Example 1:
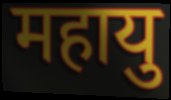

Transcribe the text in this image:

महायु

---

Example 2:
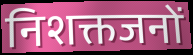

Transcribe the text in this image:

निशक्तजनों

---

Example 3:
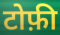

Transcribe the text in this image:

टोफ़ी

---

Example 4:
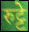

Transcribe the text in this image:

रुट्टे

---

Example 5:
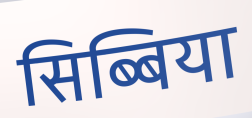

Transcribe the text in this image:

सिब्बिया